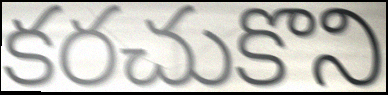
కరచుకొని